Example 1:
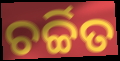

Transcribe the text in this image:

ଚର୍ଚ୍ଚିତ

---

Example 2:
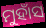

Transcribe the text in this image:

ମୁହାଁସ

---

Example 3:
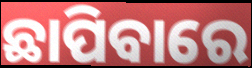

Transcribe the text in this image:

ଛାପିବାରେ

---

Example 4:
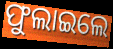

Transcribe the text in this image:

ଫୁଲାଇଲେ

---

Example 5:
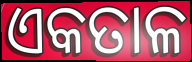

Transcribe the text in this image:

ଏକତାଳ